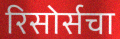
रिसोर्सचा